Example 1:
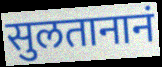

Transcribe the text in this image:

सुलतानानं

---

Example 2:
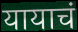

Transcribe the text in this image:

यायाचं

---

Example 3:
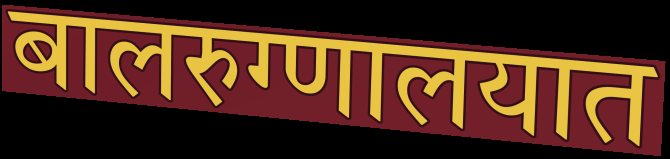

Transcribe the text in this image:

बालरुग्णालयात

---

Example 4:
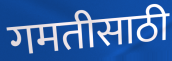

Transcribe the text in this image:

गमतीसाठी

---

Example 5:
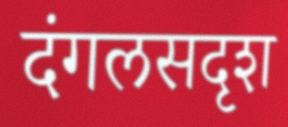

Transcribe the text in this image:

दंगलसदृश